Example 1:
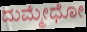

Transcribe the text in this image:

ದುಮ್ಮೇಧೋ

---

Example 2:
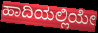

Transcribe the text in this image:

ಹಾದಿಯಲ್ಲಿಯೇ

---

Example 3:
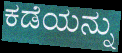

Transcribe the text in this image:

ಕಡೆಯನ್ನು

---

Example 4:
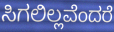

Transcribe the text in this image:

ಸಿಗಲಿಲ್ಲವೆಂದರೆ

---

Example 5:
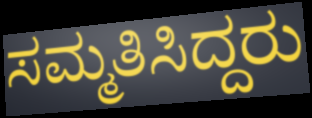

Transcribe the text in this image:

ಸಮ್ಮತಿಸಿದ್ದರು